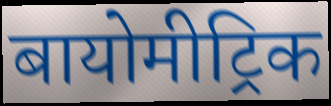
बायोमीट्रिक